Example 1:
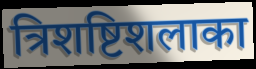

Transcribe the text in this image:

त्रिशष्टिशलाका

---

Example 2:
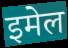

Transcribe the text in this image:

इमेल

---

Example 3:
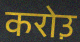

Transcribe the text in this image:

करोउ़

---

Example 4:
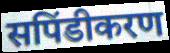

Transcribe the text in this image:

सपिंडीकरण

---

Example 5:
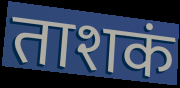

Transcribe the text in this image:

ताशकं